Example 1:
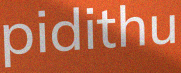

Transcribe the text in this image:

pidithu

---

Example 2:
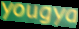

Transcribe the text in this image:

yougya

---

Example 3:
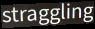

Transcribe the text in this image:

straggling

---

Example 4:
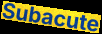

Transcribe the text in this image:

Subacute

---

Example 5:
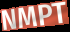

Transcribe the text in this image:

NMPT